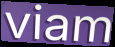
viam